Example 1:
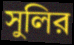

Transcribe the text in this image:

সুলির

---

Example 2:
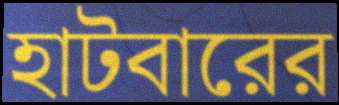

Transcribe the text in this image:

হাটবারের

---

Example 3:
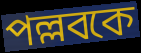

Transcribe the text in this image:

পল্লবকে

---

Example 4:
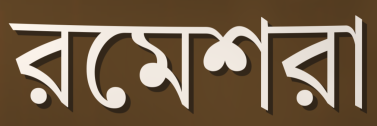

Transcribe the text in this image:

রমেশরা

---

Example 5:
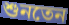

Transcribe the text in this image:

শুনতেন